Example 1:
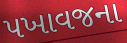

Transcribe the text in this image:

પખાવજના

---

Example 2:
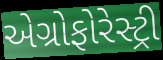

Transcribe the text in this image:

એગ્રોફોરેસ્ટ્રી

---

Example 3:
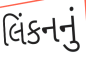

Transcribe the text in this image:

લિંકનનું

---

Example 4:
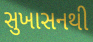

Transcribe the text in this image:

સુખાસનથી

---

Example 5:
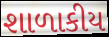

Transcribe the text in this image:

શાળાકીય